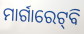
ମାର୍ଗାରେଟ୍‌ବି